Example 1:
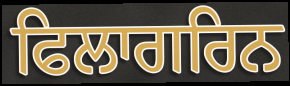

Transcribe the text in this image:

ਫਿਲਾਗਰਿਨ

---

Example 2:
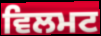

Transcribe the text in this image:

ਵਿਲਮਟ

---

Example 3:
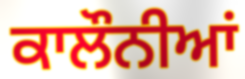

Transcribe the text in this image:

ਕਾਲੌਨੀਆਂ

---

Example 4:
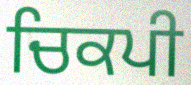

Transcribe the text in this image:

ਚਿਕਪੀ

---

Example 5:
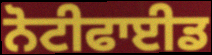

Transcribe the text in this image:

ਨੋਟੀਫਾਈਡ